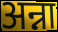
अन्ना